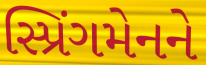
સ્પ્રિંગમેનને